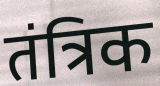
तंत्रिक